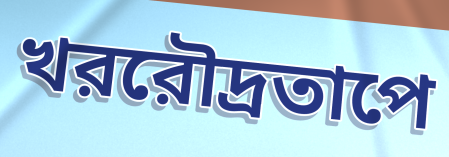
খররৌদ্রতাপে